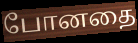
போனதை